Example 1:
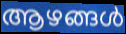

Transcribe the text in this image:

ആഴങ്ങൾ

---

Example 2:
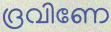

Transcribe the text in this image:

ദ്രവിണേ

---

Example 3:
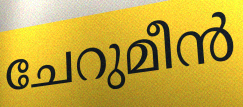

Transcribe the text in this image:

ചേറുമീൻ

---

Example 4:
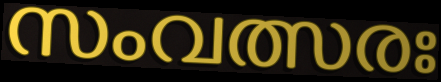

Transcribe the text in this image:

സംവത്സരഃ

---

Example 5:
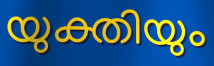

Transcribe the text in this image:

യുക്തിയും